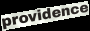
providence